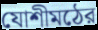
যোশীমঠের